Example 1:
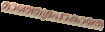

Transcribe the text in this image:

മാഞ്ഞുപോകാതെ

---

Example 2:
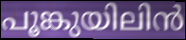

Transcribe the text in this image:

പൂങ്കുയിലിൻ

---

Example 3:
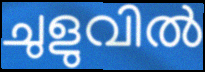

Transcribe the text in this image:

ചുളുവിൽ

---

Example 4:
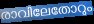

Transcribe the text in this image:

രാവിലേതോറും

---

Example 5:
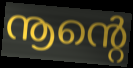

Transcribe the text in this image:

നൂന്റെ